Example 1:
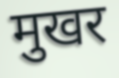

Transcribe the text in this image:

मुखर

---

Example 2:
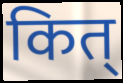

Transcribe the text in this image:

कित्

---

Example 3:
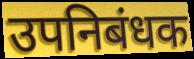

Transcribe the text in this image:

उपनिबंधक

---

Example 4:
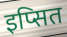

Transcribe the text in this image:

इप्सित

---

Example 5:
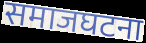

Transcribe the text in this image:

समाजघटना